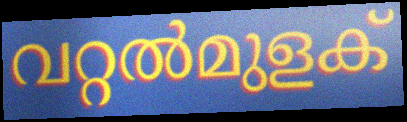
വറ്റൽമുളക്